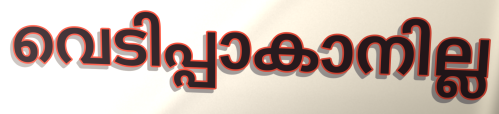
വെടിപ്പാകാനില്ല